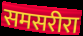
समसरीरा